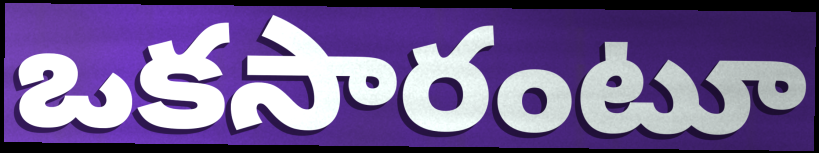
ఒకసారంటూ